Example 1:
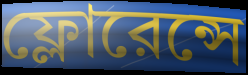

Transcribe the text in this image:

ফ্লোরেন্সে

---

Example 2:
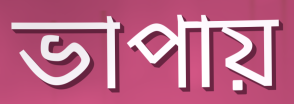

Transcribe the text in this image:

ভাপায়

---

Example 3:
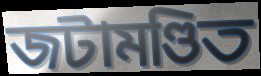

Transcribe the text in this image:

জটামণ্ডিত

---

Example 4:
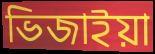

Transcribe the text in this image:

ভিজাইয়া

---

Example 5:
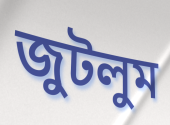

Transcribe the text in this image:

জুটলুম